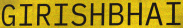
GIRISHBHAI